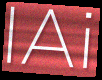
IAi